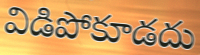
విడిపోకూడదు